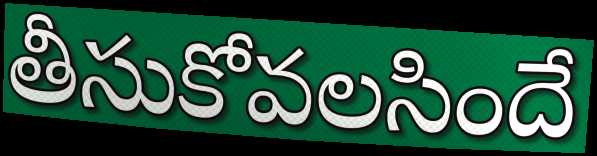
తీసుకోవలసిందే